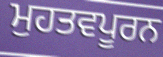
ਮੁਹਤਵਪੂਰਨ